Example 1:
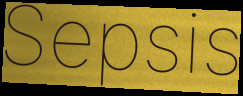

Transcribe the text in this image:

Sepsis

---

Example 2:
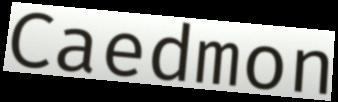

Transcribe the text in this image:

Caedmon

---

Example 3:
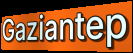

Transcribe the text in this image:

Gaziantep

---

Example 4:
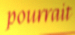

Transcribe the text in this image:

pourrait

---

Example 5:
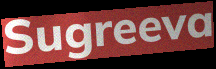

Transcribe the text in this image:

Sugreeva